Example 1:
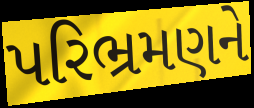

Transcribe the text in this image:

પરિભ્રમણને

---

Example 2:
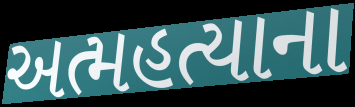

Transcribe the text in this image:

અત્મહત્યાના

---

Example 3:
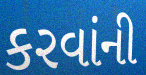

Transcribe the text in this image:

કરવાંની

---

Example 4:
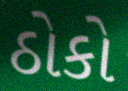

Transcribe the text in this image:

ઠોકો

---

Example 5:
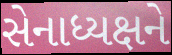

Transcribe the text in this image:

સેનાધ્યક્ષને